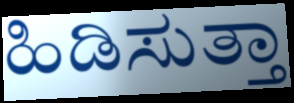
ಹಿಡಿಸುತ್ತಾ